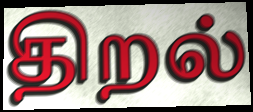
திறல்